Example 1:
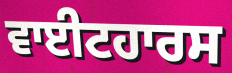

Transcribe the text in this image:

ਵਾਈਟਹਾਰਸ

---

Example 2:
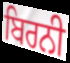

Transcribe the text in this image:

ਬਿਰਨੀ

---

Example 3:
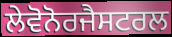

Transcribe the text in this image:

ਲੇਵੋਨੋਰਜੈਸਟਰਲ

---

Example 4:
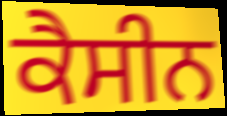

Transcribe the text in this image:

ਕੈਸੀਨ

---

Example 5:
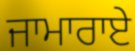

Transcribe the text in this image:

ਜਾਮਾਰਾਏ